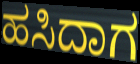
ಹಸಿದಾಗ